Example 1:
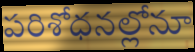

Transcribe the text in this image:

పరిశోధనల్లోనూ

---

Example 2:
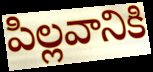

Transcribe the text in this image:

పిల్లవానికి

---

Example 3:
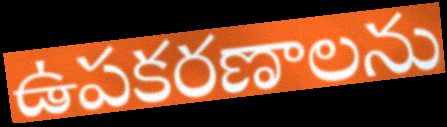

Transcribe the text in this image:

ఉపకరణాలను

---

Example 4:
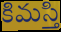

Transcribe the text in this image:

కిమస్తి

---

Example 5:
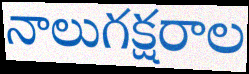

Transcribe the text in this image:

నాలుగక్షరాల